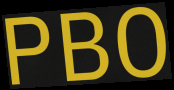
PBO